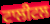
ਟਾਲੀਟਲ